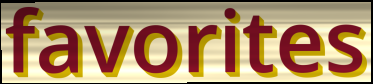
favorites